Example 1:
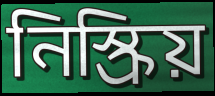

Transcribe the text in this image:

নিস্ক্রিয়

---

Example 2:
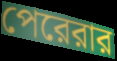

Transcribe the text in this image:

পেরেরার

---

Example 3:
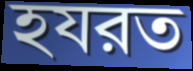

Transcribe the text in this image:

হযরত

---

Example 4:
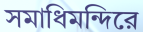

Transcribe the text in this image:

সমাধিমন্দিরে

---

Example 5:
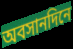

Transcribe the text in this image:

অবসানদিনে